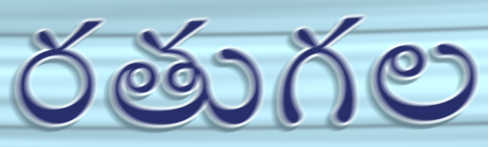
రతుగల